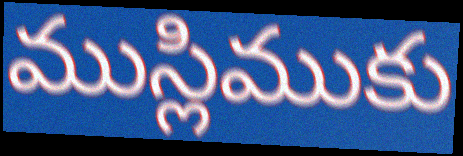
ముస్లిముకు